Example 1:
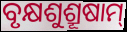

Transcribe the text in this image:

ବୃକ୍ଷଶୁଶ୍ରୂଷାମ୍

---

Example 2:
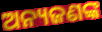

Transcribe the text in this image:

ଅନ୍ୟଜଣଙ୍କ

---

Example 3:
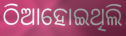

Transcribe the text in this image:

ଠିଆହୋଇଥିଲି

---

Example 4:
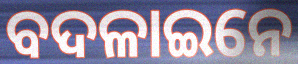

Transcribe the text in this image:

ବଦଳାଇନେ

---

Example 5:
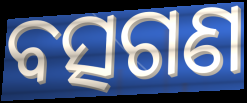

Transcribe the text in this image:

ବତ୍ସଗଣ